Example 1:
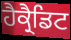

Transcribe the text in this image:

ਹੈਕ੍ਰੈਡਿਟ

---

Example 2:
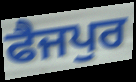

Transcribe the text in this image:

ਫੈਜਪੁਰ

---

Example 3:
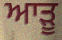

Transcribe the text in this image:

ਆੜੂ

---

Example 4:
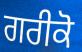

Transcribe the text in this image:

ਗਰੀਕੋ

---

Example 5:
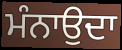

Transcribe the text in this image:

ਮੰਨਾਉਦਾ